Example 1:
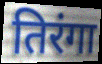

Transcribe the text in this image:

तिरंगा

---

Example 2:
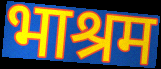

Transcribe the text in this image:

भाश्रम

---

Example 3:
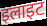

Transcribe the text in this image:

इलाइट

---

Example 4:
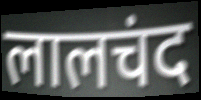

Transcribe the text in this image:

लालचंद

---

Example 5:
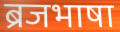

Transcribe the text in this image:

ब्रजभाषा